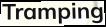
Tramping